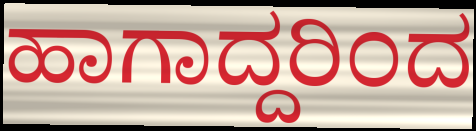
ಹಾಗಾದ್ದರಿಂದ